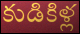
కుడికిళ్ల